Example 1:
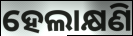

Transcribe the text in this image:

ହେଲାକ୍ଷଣି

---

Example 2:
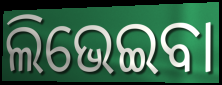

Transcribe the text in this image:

ଲିଭେଇବା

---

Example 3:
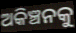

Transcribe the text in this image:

ଅକିଞ୍ଚନକୁ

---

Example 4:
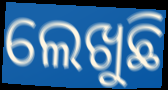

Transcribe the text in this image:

ଲେଖୁଛି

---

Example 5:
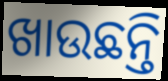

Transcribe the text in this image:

ଖାଉଛନ୍ତି